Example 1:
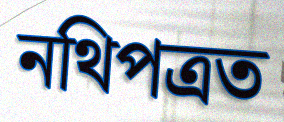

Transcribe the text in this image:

নথিপত্ৰত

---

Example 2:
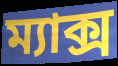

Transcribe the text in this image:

ম্যাক্স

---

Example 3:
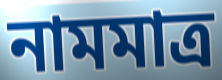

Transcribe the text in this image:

নামমাত্ৰ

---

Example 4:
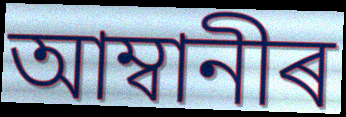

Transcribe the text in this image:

আম্বানীৰ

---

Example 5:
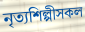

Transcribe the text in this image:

নৃত্যশিল্পীসকল